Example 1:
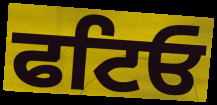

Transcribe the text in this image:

ਫਟਿਓ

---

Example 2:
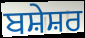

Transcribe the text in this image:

ਬਸ਼ੇਸ਼ਰ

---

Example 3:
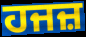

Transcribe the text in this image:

ਹਜਜ਼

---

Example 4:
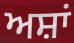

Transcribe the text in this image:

ਅਸ਼ਾਂ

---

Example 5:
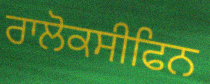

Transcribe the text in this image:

ਰਾਲੋਕਸੀਫਿਨ